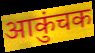
आकुंचक